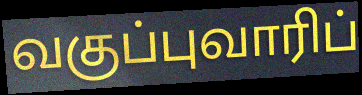
வகுப்புவாரிப்